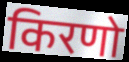
किरणो